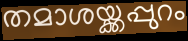
തമാശയ്ക്കപ്പുറം